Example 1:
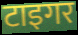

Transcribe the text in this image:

टाइगर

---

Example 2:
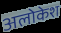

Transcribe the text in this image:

अलोकेश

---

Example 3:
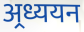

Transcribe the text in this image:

अ्रध्ययन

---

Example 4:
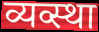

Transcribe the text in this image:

व्यव्स्था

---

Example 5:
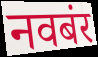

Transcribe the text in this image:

नवबंर